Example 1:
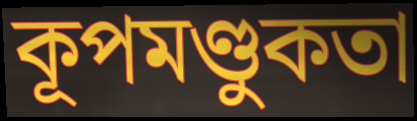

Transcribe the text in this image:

কূপমণ্ডুকতা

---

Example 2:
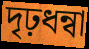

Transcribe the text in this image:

দৃঢ়ধন্বা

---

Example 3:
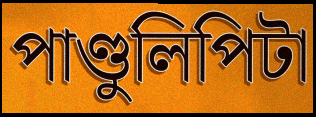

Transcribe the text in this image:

পাণ্ডুলিপিটা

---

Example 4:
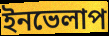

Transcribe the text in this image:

ইনভেলাপ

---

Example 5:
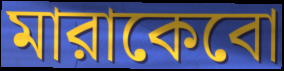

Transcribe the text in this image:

মারাকেবো